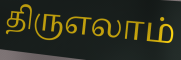
திருஎலாம்